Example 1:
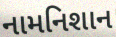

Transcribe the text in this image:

નામનિશાન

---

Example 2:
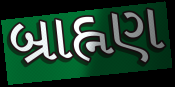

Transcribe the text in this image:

બ્રાહ્નણ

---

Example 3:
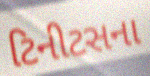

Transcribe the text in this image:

ટિનીટસના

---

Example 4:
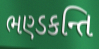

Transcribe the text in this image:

ભણ્ડકન્તિ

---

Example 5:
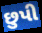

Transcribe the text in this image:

છુપી